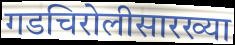
गडचिरोलीसारख्या